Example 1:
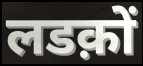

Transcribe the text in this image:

लडक़ों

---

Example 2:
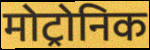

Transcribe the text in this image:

मोट्रोनिक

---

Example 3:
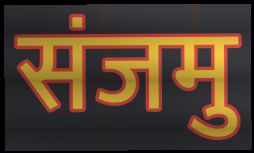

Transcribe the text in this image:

संजमु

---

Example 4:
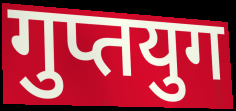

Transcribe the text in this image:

गुप्तयुग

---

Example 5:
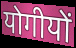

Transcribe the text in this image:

योगीयों